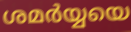
ശമർയ്യയെ